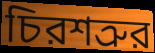
চিরশত্রুর